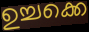
ഉച്ചക്കെ